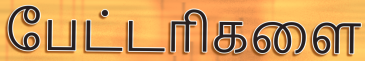
பேட்டரிகளை